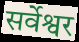
सर्वेश्वर